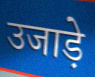
उजाड़े